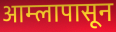
आम्लापासून